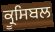
ਕ੍ਰੂਸਿਬਲ